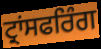
ਟ੍ਰਾਂਸਫਰਿੰਗ